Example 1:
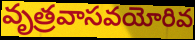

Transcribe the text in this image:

వృత్రవాసవయోరివ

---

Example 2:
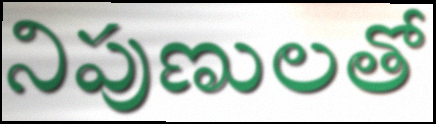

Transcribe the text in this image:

నిపుణులతో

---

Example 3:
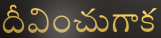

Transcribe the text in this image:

దీవించుగాక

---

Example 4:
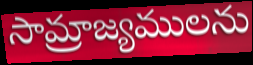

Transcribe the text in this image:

సామ్రాజ్యములను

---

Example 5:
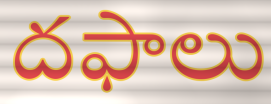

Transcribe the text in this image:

దఫాలు